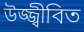
উজ্জ্বীবিত